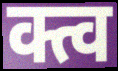
क्त्व